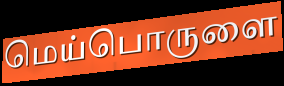
மெய்பொருளை